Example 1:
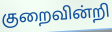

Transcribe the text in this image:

குறைவின்றி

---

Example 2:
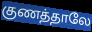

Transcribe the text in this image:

குணத்தாலே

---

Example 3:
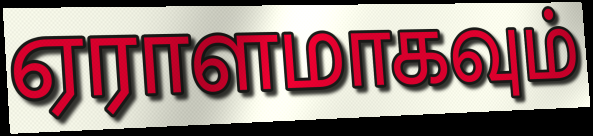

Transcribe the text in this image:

ஏராளமாகவும்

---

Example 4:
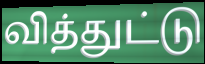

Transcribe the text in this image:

வித்துட்டு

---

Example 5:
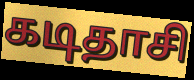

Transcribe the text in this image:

கடிதாசி